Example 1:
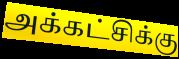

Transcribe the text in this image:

அக்கட்சிக்கு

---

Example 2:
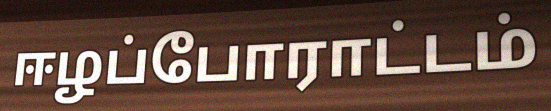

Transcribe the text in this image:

ஈழப்போராட்டம்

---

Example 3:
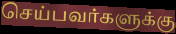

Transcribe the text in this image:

செய்பவர்களுக்கு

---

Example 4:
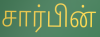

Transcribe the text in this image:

சார்பின்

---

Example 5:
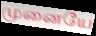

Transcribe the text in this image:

முனையே